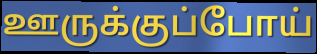
ஊருக்குப்போய்